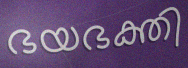
ഭയഭക്തി